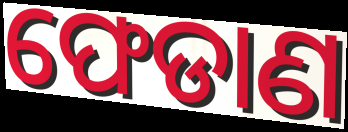
ଫେଡାଣ